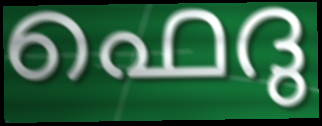
ഫെദു